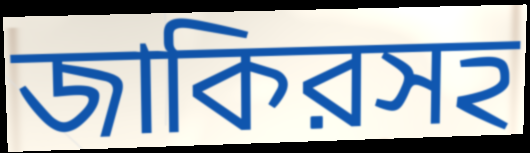
জাকিরসহ